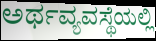
ಅರ್ಥವ್ಯವಸ್ಥೆಯಲ್ಲಿ